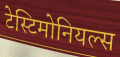
टेस्टिमोनियल्स